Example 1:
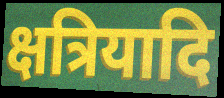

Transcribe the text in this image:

क्षत्रियादि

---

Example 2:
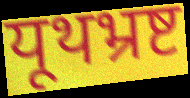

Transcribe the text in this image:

यूथभ्रष्ट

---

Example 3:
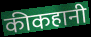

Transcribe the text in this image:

कीकहानी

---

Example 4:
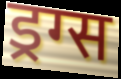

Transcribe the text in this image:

ड्रग्स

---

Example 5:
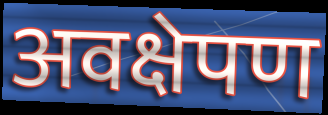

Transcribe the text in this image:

अवक्षेपण